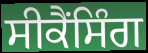
ਸੀਕੈਂਸਿੰਗ